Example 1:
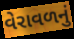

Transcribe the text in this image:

વેરાવળનું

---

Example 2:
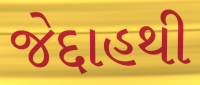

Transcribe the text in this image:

જેદ્દાહથી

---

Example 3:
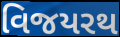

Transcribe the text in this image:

વિજયરથ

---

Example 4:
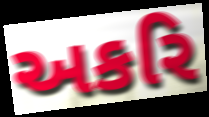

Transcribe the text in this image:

અકરિ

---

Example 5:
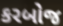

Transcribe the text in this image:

કરબોજ